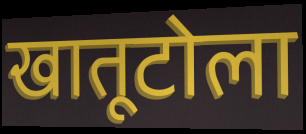
खातूटोला